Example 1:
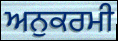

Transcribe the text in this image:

ਅਨੁਕਰਮੀ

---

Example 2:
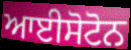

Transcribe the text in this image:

ਆਈਸੋਟੋਨ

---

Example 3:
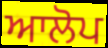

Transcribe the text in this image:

ਆਲੋਪ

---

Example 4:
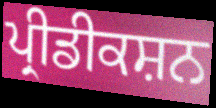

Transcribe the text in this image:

ਪ੍ਰੀਡੀਕਸ਼ਨ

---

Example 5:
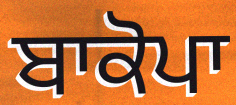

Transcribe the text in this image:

ਬਾਕੋਪਾ